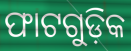
ଫାଟଗୁଡ଼ିକ